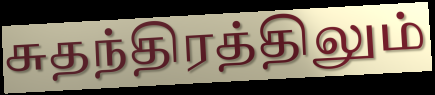
சுதந்திரத்திலும்